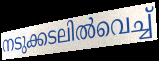
നടുക്കടലിൽവെച്ച്